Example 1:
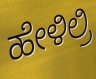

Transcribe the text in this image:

ಹೇಳಿಲ್ರಿ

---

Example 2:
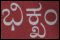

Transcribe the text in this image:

ಭಿಕ್ಖಂ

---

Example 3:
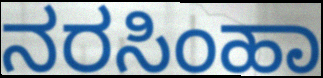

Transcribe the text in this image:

ನರಸಿಂಹಾ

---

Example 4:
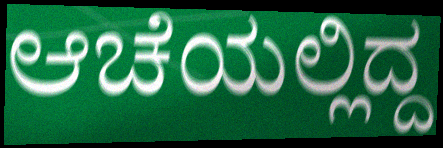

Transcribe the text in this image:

ಆಚೆಯಲ್ಲಿದ್ದ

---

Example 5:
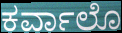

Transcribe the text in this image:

ಕರ್ವಾಲೊ